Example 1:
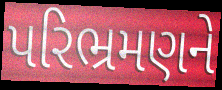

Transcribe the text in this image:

પરિભ્રમણને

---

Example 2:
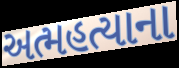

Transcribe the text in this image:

અત્મહત્યાના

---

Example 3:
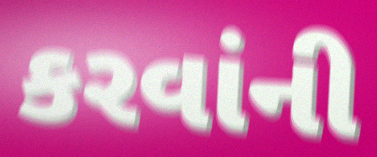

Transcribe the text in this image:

કરવાંની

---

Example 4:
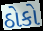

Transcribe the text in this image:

ઠોકો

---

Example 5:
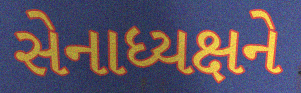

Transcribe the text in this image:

સેનાધ્યક્ષને